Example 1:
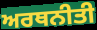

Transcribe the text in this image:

ਅਰਥਨੀਤੀ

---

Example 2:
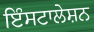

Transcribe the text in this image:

ਇੰਸਟਾਲੇਸ਼ਨ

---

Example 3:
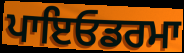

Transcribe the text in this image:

ਪਾਇਓਡਰਮਾ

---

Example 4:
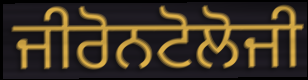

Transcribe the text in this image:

ਜੀਰੋਨਟੋਲੋਜੀ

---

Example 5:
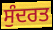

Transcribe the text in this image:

ਸੁੰਦਰਤ